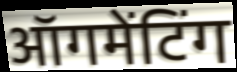
ऑगमेंटिंग